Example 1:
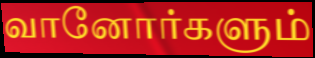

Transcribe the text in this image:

வானோர்களும்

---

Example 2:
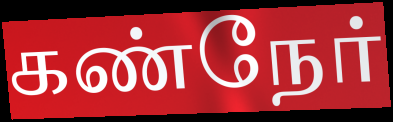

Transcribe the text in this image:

கண்நேர்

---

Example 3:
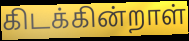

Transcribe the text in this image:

கிடக்கின்றாள்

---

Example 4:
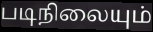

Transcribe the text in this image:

படிநிலையும்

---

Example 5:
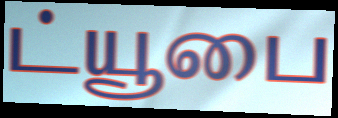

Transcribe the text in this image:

ட்யூபை